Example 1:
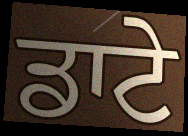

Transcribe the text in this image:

ਡਾਟੇ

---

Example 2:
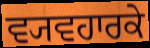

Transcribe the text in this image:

ਵ੍ਯਵਹਾਰਕੇ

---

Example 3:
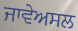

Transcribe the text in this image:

ਜਾਵੇਅਸਲ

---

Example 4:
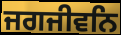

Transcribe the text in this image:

ਜਗਜੀਵਨਿ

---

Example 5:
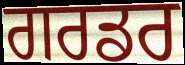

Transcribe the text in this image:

ਗਰਡਰ